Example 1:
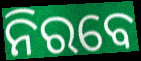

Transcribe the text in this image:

ନିରବେ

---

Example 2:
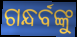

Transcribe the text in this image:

ଗନ୍ଧର୍ବଙ୍କୁ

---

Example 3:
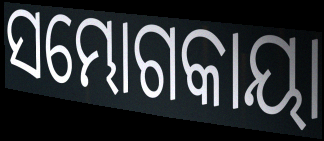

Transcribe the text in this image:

ସମ୍ଭୋଗକାୟା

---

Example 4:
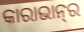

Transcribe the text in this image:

କାରାଭାନ୍‍ର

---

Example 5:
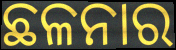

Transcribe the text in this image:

ଛଳନାର